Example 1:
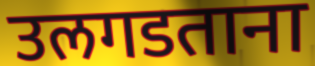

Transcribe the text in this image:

उलगडताना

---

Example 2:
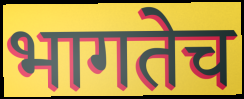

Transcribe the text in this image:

भागतेच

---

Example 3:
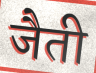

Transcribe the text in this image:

जैती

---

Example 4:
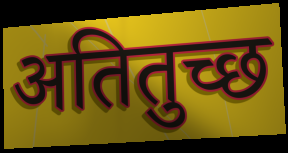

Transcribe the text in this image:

अतितुच्छ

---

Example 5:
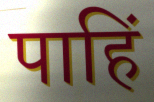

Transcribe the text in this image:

पाहिं